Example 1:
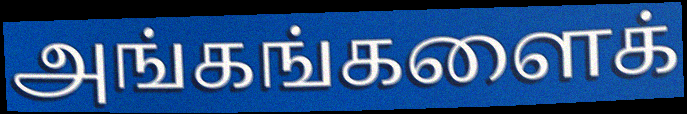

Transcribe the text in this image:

அங்கங்களைக்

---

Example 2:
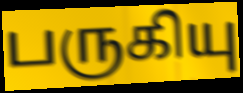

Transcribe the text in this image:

பருகியு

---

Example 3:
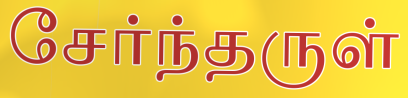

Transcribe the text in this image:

சேர்ந்தருள்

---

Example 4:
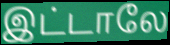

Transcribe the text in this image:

இட்டாலே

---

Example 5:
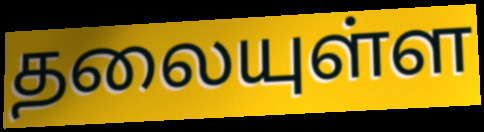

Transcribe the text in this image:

தலையுள்ள